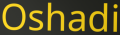
Oshadi